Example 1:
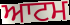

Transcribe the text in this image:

ਆਟਮ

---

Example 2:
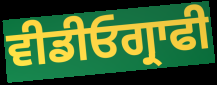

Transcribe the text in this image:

ਵੀਡੀਓਗ੍ਰਾਫੀ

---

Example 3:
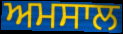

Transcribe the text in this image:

ਅਮਸਾਲ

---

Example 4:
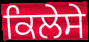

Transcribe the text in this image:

ਕਿਲੇਸੇ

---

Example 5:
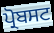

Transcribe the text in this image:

ਪ੍ਰੋਬਸਟ